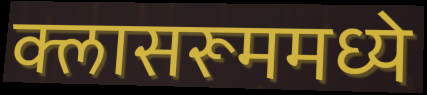
क्लासरूममध्ये